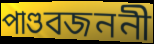
পাণ্ডবজননী